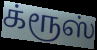
க்ரூஸ்